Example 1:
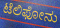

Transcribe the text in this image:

ಟೆಲಿಫೋನು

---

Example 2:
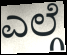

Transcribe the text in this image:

ಎಲ್ಗೆ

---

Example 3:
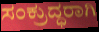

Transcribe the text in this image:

ಸಂಕ್ರುದ್ಧರಾಗಿ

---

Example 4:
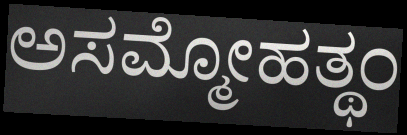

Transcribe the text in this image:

ಅಸಮ್ಮೋಹತ್ಥಂ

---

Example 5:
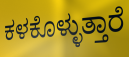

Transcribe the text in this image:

ಕಳಕೊಳ್ಳುತ್ತಾರೆ